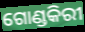
ଗୋଣ୍ଡକିରୀ